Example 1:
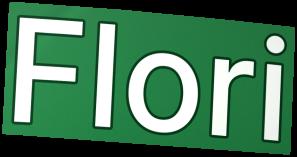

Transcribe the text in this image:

Flori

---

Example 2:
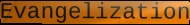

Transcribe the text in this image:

Evangelization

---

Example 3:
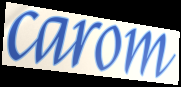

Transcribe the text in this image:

carom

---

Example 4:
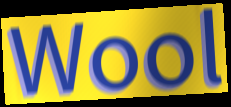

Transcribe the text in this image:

Wool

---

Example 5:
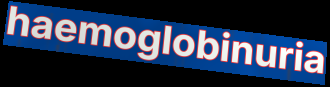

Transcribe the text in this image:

haemoglobinuria